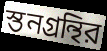
স্তনগ্রন্থির